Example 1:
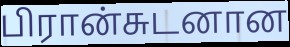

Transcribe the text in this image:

பிரான்சுடனான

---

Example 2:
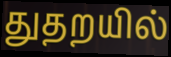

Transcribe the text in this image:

துதறயில்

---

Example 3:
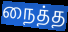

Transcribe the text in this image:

நைத்த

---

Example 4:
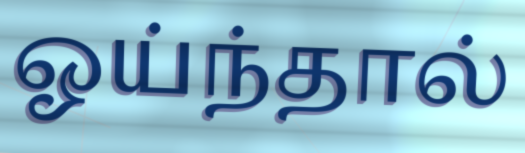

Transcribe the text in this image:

ஓய்ந்தால்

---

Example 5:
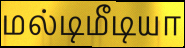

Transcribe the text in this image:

மல்டிமீடியா